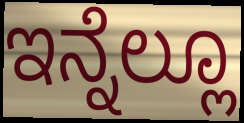
ಇನ್ನೆಲ್ಲೂ